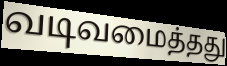
வடிவமைத்தது